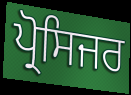
ਪ੍ਰੋਸਿਜਰ